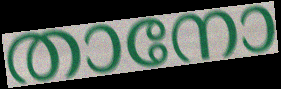
താനോ